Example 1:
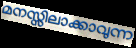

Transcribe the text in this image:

മനസ്സിലാക്കാവുന്ന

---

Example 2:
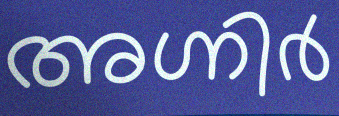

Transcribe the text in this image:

അഗ്നിർ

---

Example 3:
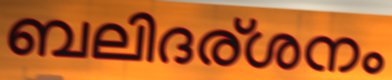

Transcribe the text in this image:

ബലിദര്ശനം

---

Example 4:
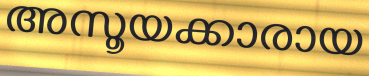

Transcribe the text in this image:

അസൂയക്കാരായ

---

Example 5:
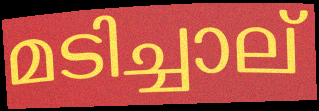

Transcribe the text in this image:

മടിച്ചാല്